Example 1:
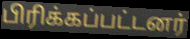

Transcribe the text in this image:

பிரிக்கப்பட்டனர்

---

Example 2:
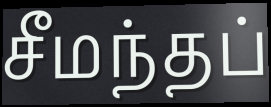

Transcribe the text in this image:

சீமந்தப்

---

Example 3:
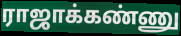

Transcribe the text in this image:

ராஜாக்கண்ணு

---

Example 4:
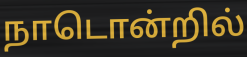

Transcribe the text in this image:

நாடொன்றில்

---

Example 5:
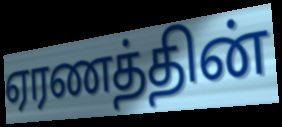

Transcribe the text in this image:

ஏரணத்தின்